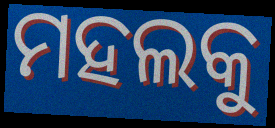
ମହଲକୁ